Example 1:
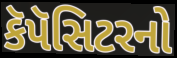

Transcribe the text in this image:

કૅપૅસિટરનો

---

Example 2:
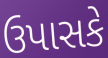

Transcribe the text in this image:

ઉપાસકે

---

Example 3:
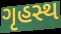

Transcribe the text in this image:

ગૃહસ્થ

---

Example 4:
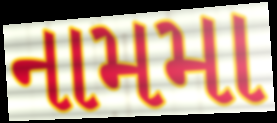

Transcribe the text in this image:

નામમા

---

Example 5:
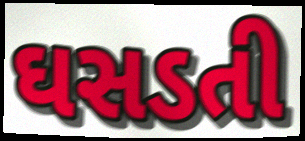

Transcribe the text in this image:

ઘસડતી